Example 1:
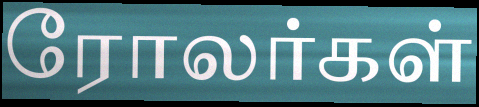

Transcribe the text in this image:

ரோலர்கள்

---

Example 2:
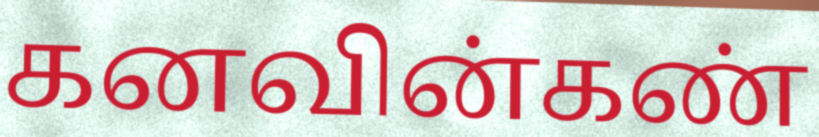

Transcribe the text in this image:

கனவின்கண்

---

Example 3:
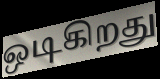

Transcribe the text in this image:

ஒடிகிறது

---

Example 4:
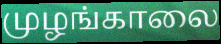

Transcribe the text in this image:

முழங்காலை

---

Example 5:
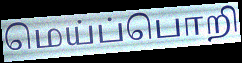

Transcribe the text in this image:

மெய்ப்பொறி